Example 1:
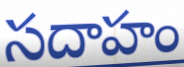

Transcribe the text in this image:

సదాహం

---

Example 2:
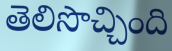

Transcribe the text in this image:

తెలిసొచ్చింది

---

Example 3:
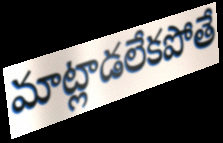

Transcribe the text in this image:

మాట్లాడలేకపోతే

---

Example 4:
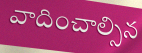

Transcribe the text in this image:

వాదించాల్సిన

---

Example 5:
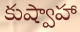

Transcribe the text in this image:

కుష్వాహా